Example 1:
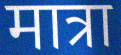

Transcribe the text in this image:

मात्रा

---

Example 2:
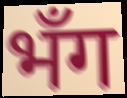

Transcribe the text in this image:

भँग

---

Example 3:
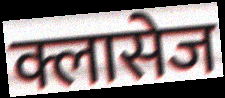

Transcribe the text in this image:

क्लासेज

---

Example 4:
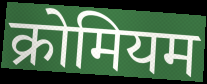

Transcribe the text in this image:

क्रोमियम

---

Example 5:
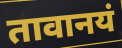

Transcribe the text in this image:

तावानयं